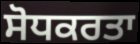
ਸੋਧਕਰਤਾ